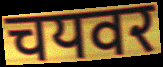
चयवर